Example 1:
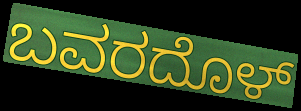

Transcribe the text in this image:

ಬವರದೊಳ್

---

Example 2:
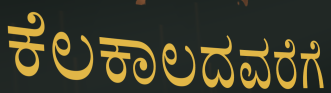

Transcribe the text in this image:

ಕೆಲಕಾಲದವರೆಗೆ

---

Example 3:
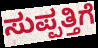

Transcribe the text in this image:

ಸುಪ್ಪತ್ತಿಗೆ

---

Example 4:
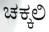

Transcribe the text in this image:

ಚಕ್ಕಲಿ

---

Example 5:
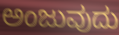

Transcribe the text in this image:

ಅಂಜುವುದು